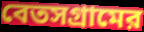
বেতসগ্রামের